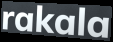
rakala